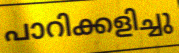
പാറിക്കളിച്ചു